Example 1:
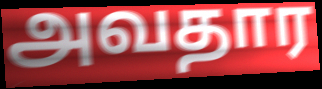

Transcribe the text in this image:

அவதார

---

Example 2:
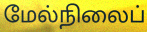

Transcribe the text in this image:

மேல்நிலைப்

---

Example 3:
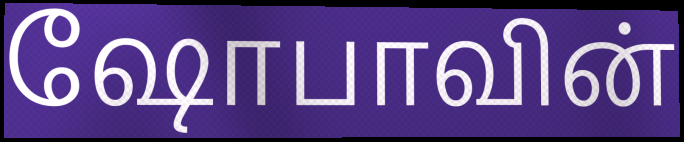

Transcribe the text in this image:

ஷோபாவின்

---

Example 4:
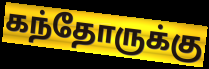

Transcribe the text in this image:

கந்தோருக்கு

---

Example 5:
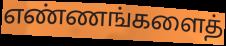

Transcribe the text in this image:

எண்ணங்களைத்